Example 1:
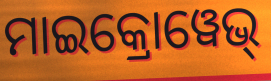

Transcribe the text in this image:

ମାଇକ୍ରୋୱେଭ୍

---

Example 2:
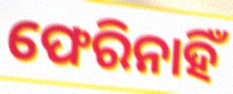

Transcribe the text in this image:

ଫେରିନାହିଁ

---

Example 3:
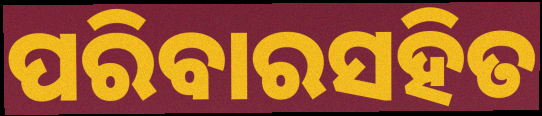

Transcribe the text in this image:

ପରିବାରସହିତ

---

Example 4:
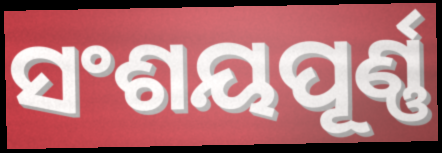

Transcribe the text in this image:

ସଂଶୟପୂର୍ଣ୍ଣ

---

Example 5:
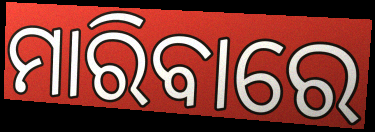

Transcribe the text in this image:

ମାରିବାରେ